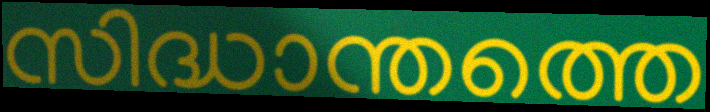
സിദ്ധാന്തത്തെ